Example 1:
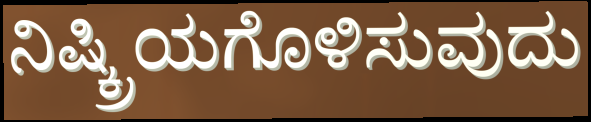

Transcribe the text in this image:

ನಿಷ್ಕ್ರಿಯಗೊಳಿಸುವುದು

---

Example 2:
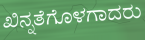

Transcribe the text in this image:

ಖಿನ್ನತೆಗೊಳಗಾದರು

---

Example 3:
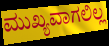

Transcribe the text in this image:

ಮುಖ್ಯವಾಗಲಿಲ್ಲ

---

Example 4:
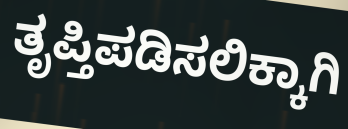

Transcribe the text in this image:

ತೃಪ್ತಿಪಡಿಸಲಿಕ್ಕಾಗಿ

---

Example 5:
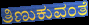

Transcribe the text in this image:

ತಿಣುಕುವಂತೆ